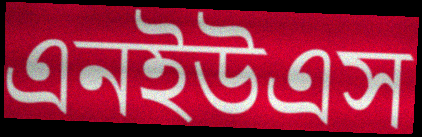
এনইউএস